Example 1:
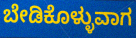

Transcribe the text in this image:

ಬೇಡಿಕೊಳ್ಳುವಾಗ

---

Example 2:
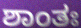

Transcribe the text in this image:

ಶಾಂತಃ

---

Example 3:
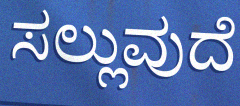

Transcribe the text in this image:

ಸಲ್ಲುವುದೆ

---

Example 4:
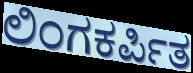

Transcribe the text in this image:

ಲಿಂಗಕರ್ಪಿತ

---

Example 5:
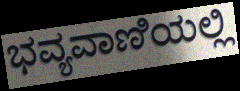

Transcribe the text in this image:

ಭವ್ಯವಾಣಿಯಲ್ಲಿ